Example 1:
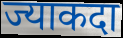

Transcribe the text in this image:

ज्याकदा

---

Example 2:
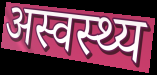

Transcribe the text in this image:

अस्वस्थ्य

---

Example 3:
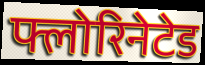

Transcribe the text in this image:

फ्लोरिनेटेड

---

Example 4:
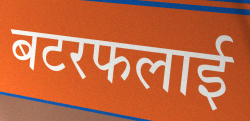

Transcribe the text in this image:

बटरफलाई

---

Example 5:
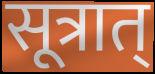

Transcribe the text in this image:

सूत्रात्